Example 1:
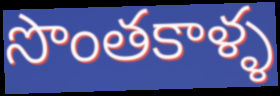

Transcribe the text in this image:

సొంతకాళ్ళ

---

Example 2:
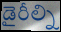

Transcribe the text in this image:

డైరీల్ని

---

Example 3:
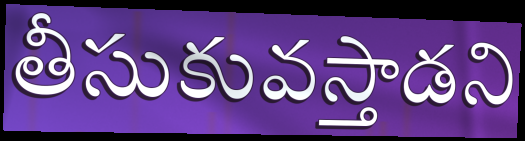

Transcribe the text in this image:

తీసుకువస్తాడని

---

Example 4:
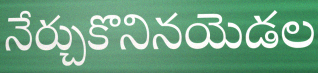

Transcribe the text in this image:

నేర్చుకొనినయెడల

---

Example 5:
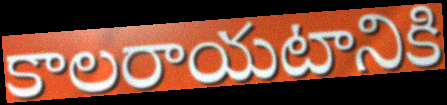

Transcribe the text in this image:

కాలరాయటానికి